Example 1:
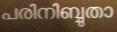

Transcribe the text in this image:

പരിനിബ്ബുതാ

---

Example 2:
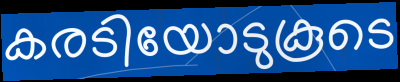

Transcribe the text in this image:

കരടിയോടുകൂടെ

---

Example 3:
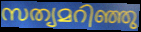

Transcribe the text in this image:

സത്യമറിഞ്ഞു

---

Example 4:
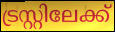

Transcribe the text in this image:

ട്രസ്റ്റിലേക്ക്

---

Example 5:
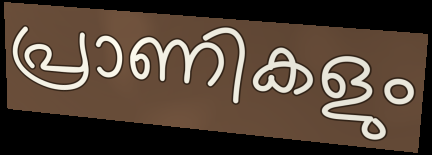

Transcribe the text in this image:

പ്രാണികളും